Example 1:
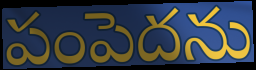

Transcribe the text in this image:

పంపెదను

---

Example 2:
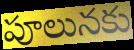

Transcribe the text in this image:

పూలునకు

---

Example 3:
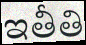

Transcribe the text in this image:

ఇతీతి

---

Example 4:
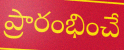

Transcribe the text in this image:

ప్రారంభించే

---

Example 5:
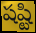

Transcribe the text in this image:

షష్టి